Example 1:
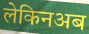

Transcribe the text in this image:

लेकिनअब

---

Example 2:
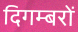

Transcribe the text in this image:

दिगम्बरों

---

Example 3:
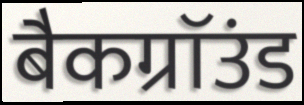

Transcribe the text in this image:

बैकग्रॉउंड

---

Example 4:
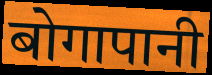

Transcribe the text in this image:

बोगापानी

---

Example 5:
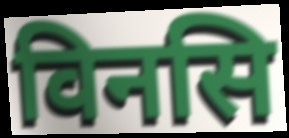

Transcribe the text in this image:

विनसि